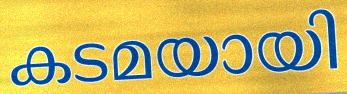
കടമയായി